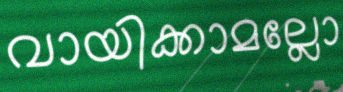
വായിക്കാമല്ലോ